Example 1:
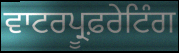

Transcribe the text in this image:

ਵਾਟਰਪ੍ਰੂਫ਼ਰੇਟਿੰਗ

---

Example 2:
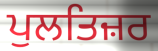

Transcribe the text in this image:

ਪੁਲਤਿਜ਼ਰ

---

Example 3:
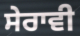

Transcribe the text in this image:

ਸੇਰਾਵੀ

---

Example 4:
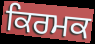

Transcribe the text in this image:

ਕਿਰਮਕ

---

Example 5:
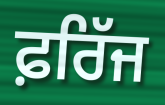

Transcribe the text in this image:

ਫ਼ਰਿੱਜ